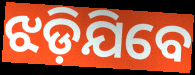
ଝଡ଼ିଯିବେ